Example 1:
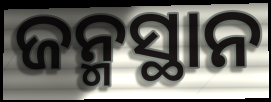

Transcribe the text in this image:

ଜନ୍ମସ୍ଥାନ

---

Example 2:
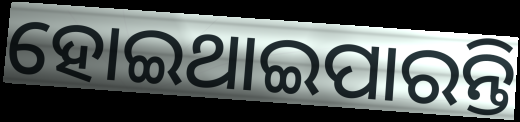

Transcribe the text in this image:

ହୋଇଥାଇପାରନ୍ତି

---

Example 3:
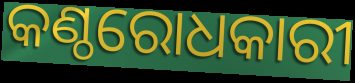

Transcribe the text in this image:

କଣ୍ଠରୋଧକାରୀ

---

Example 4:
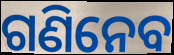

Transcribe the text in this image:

ଗଣିନେବ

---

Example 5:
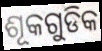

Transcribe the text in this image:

ଶୂକଗୁଡିକ